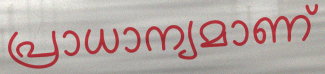
പ്രാധാന്യമാണ്